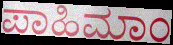
ಪಾಹಿಮಾಂ